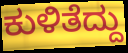
ಕುಳಿತೆದ್ದು